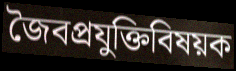
জৈবপ্রযুক্তিবিষয়ক